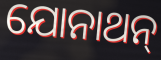
ଯୋନାଥନ୍